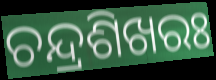
ଚନ୍ଦ୍ରଶିଖରଃ